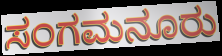
ಸಂಗಮನೂರು